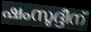
ഷംസുദ്ദീന്